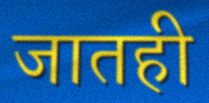
जातही